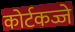
कोर्टकज्जे